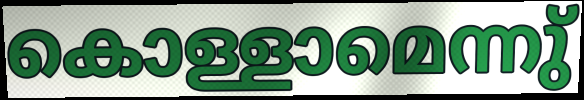
കൊള്ളാമെന്നു്